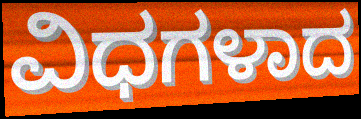
ವಿಧಗಳಾದ